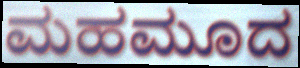
ಮಹಮೂದ